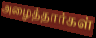
அழைத்தார்கள்